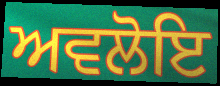
ਅਵਲੋਇ